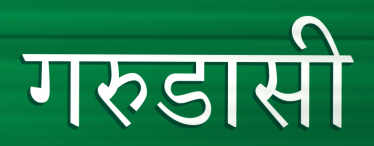
गरुडासी